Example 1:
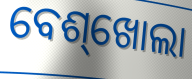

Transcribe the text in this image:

ବେଶ୍‌ଖୋଲା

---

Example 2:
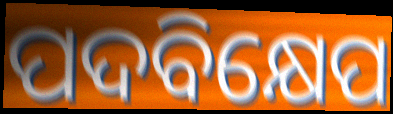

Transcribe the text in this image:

ପଦବିକ୍ଷେପ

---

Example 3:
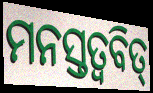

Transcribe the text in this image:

ମନସ୍ତତ୍ଵବିତ୍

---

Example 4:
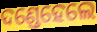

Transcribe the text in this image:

ଦଣ୍ଡେହେଲେ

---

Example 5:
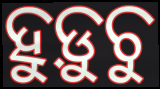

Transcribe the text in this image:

ହୁଡ଼ୁଚୁ